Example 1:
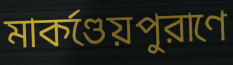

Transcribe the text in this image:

মার্কণ্ডেয়পুরাণে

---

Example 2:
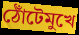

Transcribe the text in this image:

ঠোঁটেমুখে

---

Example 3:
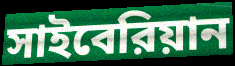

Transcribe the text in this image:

সাইবেরিয়ান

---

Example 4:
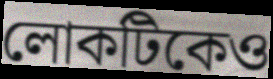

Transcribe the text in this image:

লোকটিকেও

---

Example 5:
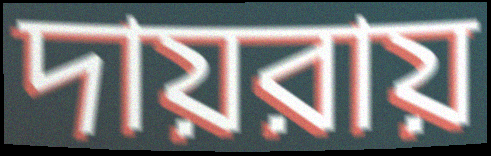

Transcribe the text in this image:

দায়রায়